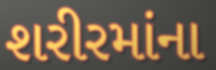
શરીરમાંના